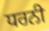
ਧਰਨੀ